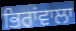
ਭਿਰਾਂਵਾਲਾ